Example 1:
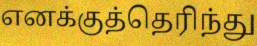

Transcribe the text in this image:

எனக்குத்தெரிந்து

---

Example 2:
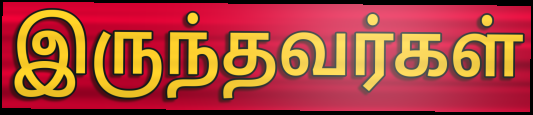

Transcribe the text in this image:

இருந்தவர்கள்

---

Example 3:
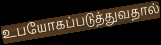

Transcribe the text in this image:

உபயோகப்படுத்துவதால்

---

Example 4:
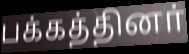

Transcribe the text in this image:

பக்கத்தினர்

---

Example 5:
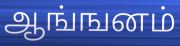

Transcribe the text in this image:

ஆங்ஙனம்